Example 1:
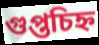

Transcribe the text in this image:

গুপ্তচিহ্ন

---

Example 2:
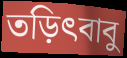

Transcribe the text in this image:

তড়িৎবাবু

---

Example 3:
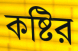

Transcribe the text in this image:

কষ্টির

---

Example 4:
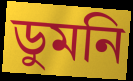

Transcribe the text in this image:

ডুমনি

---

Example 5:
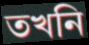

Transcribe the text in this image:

তখনি